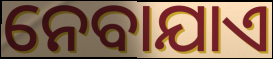
ନେବାଯାଏ